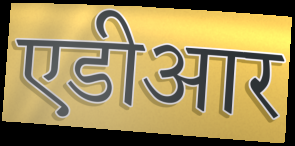
एडीआर